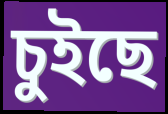
চুইছে